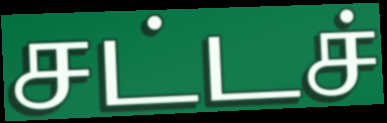
சட்டச்